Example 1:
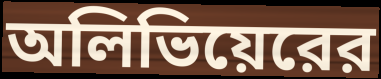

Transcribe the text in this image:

অলিভিয়েরের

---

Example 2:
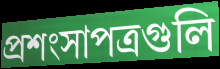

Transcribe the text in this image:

প্রশংসাপত্রগুলি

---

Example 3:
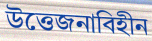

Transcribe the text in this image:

উত্তেজনাবিহীন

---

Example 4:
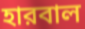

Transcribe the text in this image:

হারবাল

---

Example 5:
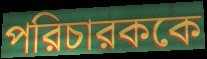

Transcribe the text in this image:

পরিচারককে